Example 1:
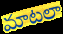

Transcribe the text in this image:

మాటలా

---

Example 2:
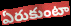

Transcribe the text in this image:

ఏరుకుంటా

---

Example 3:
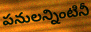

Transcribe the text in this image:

పనులన్నింటినీ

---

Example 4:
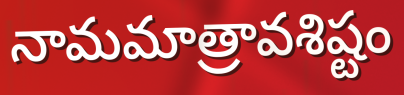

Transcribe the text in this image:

నామమాత్రావశిష్టం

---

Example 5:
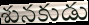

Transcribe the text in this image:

శునకుడు